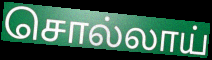
சொல்லாய்